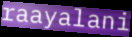
raayalani